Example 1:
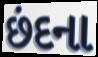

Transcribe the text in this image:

છંદના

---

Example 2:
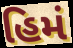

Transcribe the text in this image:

હિમં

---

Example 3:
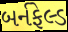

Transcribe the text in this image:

બર્નફેલ્ડ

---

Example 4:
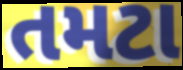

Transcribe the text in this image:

તમટા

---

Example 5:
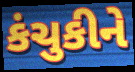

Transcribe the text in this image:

કંચુકીને